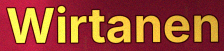
Wirtanen